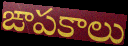
ఙాపకాలు